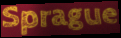
Sprague